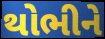
થોભીને